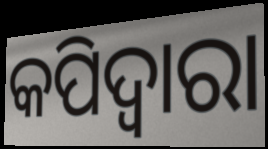
କପିଦ୍ୱାରା